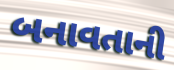
બનાવતાની